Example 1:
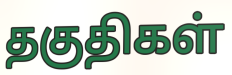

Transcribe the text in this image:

தகுதிகள்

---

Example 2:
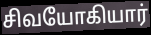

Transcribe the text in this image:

சிவயோகியார்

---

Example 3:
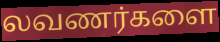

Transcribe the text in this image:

லவணர்களை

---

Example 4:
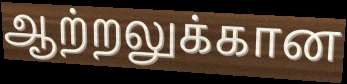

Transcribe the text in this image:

ஆற்றலுக்கான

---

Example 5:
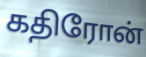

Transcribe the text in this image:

கதிரோன்